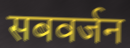
सबवर्जन